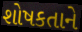
શોષકતાને